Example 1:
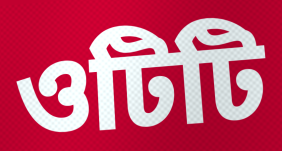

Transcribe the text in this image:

ওটিটি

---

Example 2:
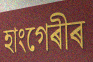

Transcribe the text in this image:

হাংগেৰীৰ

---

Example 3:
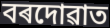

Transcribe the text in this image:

বৰদোৱাত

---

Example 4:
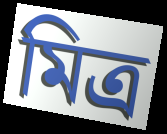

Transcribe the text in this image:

মিত্ৰ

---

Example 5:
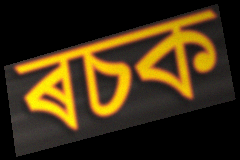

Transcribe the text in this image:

ৰচক